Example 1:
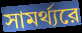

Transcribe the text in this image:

সামর্থ্যরে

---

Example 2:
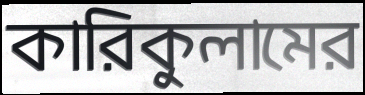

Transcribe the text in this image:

কারিকুলামের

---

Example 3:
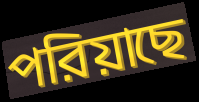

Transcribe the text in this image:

পরিয়াছে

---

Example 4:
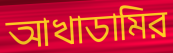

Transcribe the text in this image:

আখাডামির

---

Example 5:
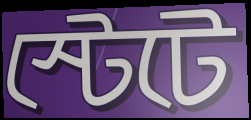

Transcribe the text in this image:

স্টেটে